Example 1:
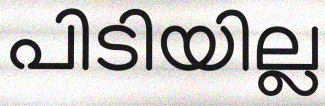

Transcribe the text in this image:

പിടിയില്ല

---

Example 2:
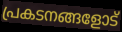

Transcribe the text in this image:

പ്രകടനങ്ങളോട്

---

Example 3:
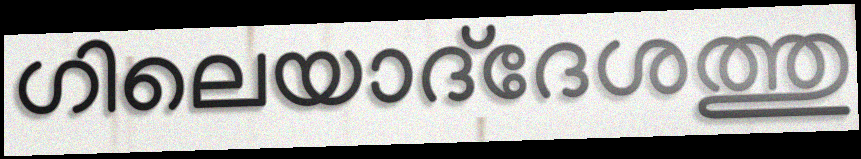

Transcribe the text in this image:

ഗിലെയാദ്‌ദേശത്തു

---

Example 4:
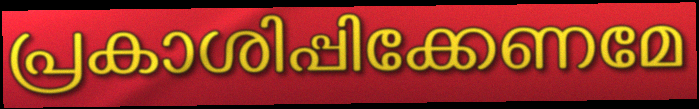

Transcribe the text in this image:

പ്രകാശിപ്പിക്കേണമേ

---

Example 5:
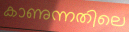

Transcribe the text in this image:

കാണുന്നതിലെ